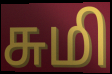
சுமி